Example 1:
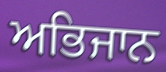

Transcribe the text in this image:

ਅਭਿਜਾਨ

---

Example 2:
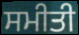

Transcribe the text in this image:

ਸਮੀਤੀ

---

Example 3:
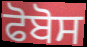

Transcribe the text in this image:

ਫੋਬੋਸ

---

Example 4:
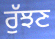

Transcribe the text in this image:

ਰੁੱਝਣ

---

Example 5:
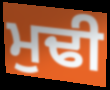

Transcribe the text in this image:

ਮੁਢੀ